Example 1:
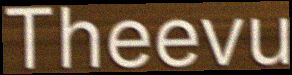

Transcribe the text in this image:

Theevu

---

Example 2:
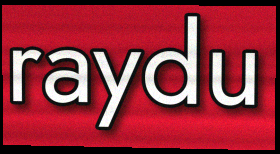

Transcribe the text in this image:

raydu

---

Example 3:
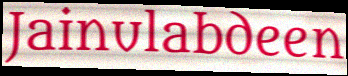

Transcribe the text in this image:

Jainulabdeen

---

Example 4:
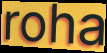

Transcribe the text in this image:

roha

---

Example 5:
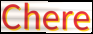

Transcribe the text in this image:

Chere